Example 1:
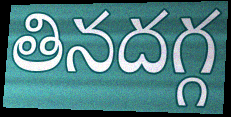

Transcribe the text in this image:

తినదగ్గ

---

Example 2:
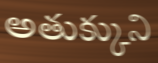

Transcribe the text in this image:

అతుక్కుని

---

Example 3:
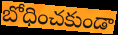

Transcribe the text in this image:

బోధించకుండా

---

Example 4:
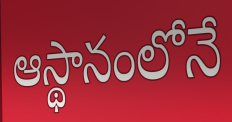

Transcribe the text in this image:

ఆస్థానంలోనే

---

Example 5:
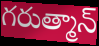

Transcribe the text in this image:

గరుత్మాన్